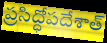
ప్రసిద్ధోపదేశాత్